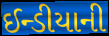
ઈન્ડીયાની